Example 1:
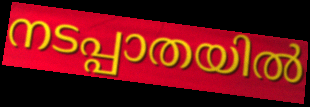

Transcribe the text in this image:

നടപ്പാതയിൽ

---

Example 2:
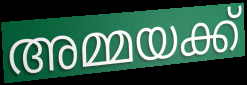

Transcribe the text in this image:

അമ്മയക്ക്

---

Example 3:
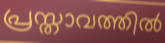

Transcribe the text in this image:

പ്രസ്താവത്തിൽ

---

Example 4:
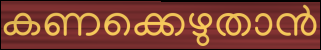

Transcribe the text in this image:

കണക്കെഴുതാൻ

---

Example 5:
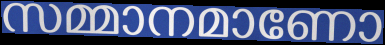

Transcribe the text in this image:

സമ്മാനമാണോ